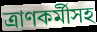
ত্রাণকর্মীসহ